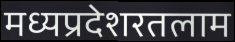
मध्यप्रदेशरतलाम